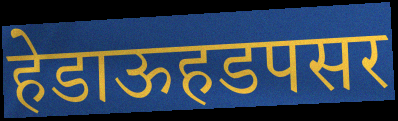
हेडाऊहडपसर